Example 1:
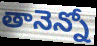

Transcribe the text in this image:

తానెన్నో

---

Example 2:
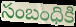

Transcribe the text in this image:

సంబంధికి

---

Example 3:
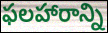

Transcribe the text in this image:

ఫలహారాన్ని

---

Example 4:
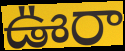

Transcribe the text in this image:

ఊరా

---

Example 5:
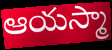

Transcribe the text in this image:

ఆయస్మా